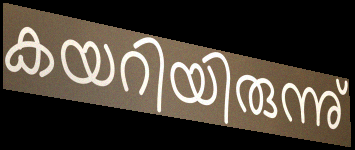
കയറിയിരുന്നു്